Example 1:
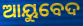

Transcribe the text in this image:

ଆୟୁବେଦ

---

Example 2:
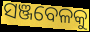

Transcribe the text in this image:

ସଞ୍ଜବେଳକୁ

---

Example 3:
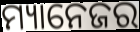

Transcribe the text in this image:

ମ୍ୟାନେଜର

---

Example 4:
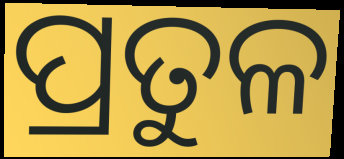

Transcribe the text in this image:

ପ୍ରତୁଳ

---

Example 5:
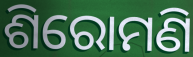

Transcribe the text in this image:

ଶିରୋମଣି